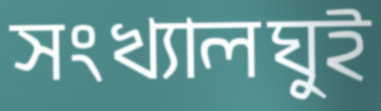
সংখ্যালঘুই